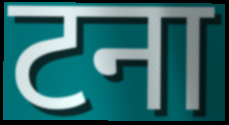
टना